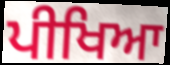
ਪੀਖਿਆ